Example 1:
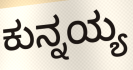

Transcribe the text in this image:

ಕುನ್ನಯ್ಯ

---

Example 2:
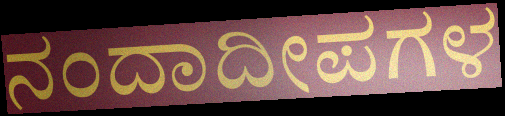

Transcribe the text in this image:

ನಂದಾದೀಪಗಳ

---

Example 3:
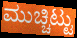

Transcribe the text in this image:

ಮುಚ್ಚಿಟ್ಟು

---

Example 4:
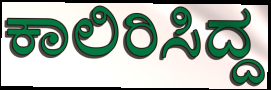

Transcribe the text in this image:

ಕಾಲಿರಿಸಿದ್ದ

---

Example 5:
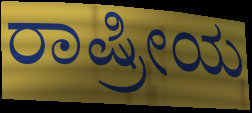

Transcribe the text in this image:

ರಾಷ್ರೀಯ